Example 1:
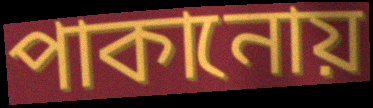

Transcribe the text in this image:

পাকানোয়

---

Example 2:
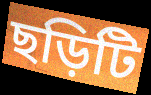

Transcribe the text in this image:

ছড়িটি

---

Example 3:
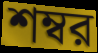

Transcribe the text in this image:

শম্বর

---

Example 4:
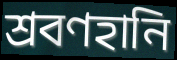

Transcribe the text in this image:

শ্রবণহানি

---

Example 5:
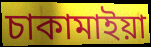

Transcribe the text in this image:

চাকামাইয়া